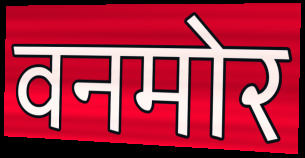
वनमोर